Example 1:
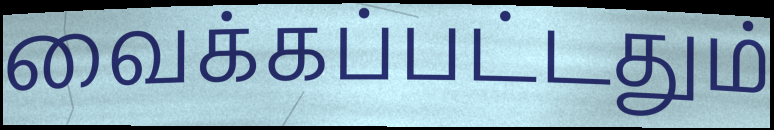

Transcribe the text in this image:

வைக்கப்பட்டதும்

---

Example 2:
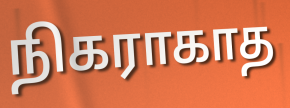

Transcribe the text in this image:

நிகராகாத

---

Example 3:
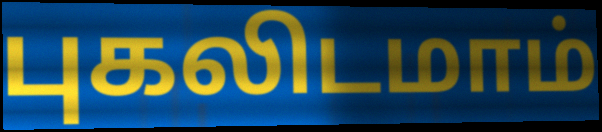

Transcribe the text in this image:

புகலிடமாம்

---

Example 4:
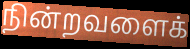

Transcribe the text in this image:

நின்றவளைக்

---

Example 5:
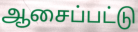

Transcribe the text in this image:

ஆசைப்பட்டு